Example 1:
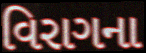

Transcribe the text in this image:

વિરાગના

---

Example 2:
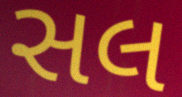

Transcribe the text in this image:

સલ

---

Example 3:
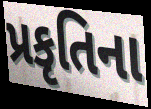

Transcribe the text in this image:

પ્રકૃતિના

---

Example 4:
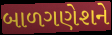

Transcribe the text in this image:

બાળગણેશને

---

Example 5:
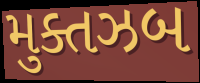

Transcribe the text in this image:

મુક્તઝબ